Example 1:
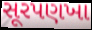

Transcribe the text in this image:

સૂરપણખા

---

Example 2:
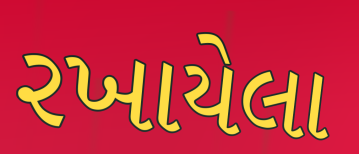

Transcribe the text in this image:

રખાયેલા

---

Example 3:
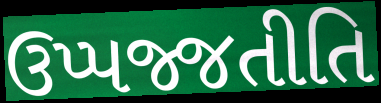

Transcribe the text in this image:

ઉપ્પજ્જતીતિ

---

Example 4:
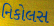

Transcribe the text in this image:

નિકોલસ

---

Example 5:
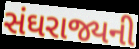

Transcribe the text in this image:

સંઘરાજ્યની